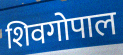
शिवगोपाल